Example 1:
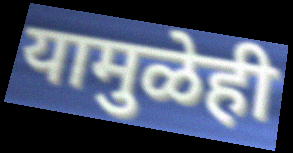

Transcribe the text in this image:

यामुळेही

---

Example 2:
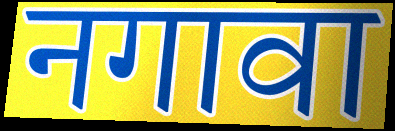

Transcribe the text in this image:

नगावा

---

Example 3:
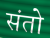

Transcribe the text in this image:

संतो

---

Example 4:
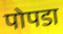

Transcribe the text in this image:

पोपडा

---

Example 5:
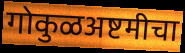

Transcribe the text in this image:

गोकुळअष्टमीचा